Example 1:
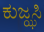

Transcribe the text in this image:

ಕುಜ್ಝಸಿ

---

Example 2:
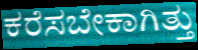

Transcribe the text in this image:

ಕರೆಸಬೇಕಾಗಿತ್ತು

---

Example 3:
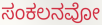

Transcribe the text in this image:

ಸಂಕಲನವೋ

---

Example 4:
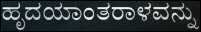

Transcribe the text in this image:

ಹೃದಯಾಂತರಾಳವನ್ನು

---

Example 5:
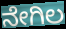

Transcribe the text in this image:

ನೇಗಿಲ